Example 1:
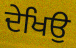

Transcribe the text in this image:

ਦੇਖਿਉ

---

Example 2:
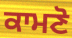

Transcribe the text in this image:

ਕਾਮਣੋ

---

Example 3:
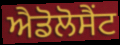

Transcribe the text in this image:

ਐਡੋਲੋਸੈਂਟ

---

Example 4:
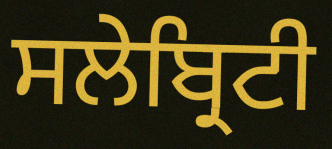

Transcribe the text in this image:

ਸਲੇਬ੍ਰਿਟੀ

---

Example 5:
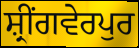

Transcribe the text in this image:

ਸ਼੍ਰੀਂਗਵੇਰਪੁਰ